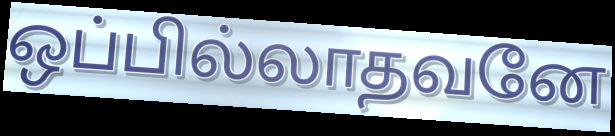
ஒப்பில்லாதவனே